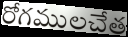
రోగములచేత